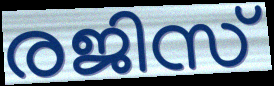
രജിസ്